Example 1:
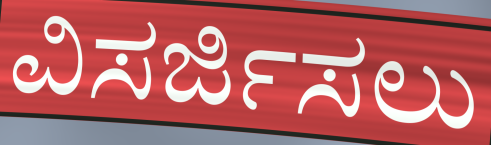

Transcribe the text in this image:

ವಿಸರ್ಜಿಸಲು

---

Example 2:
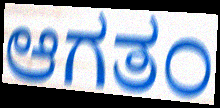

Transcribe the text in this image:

ಆಗತಂ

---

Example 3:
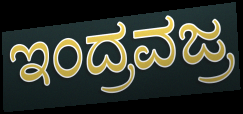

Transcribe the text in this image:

ಇಂದ್ರವಜ್ರ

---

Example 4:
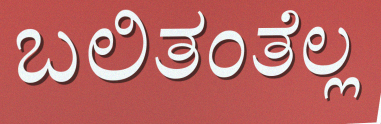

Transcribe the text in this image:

ಬಲಿತಂತೆಲ್ಲ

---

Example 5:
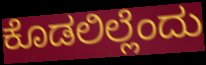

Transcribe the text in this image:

ಕೊಡಲಿಲ್ಲೆಂದು